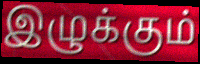
இழுக்கும்